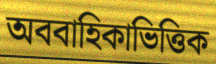
অববাহিকাভিত্তিক